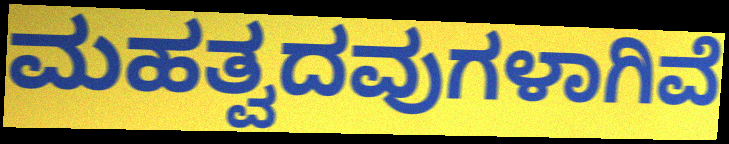
ಮಹತ್ವದವುಗಳಾಗಿವೆ